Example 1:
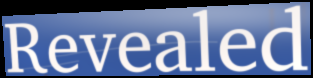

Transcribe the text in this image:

Revealed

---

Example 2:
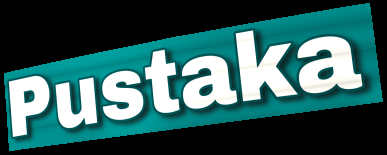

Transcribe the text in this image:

Pustaka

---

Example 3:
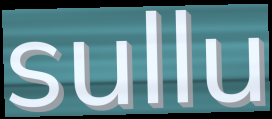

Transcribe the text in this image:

sullu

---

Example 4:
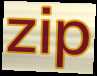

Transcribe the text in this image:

zip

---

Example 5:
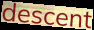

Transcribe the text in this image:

descent